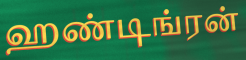
ஹண்டிங்ரன்